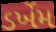
ડર્ખેમ